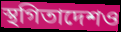
স্থগিতাদেশও